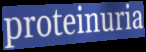
proteinuria